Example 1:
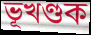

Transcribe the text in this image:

ভূখণ্ডক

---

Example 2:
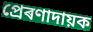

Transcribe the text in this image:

প্ৰেৰণাদায়ক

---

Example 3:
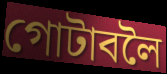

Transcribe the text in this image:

গোটাবলৈ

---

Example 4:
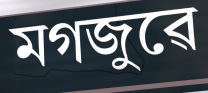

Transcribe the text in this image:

মগজুৱে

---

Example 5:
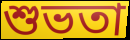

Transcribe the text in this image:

শুভতা